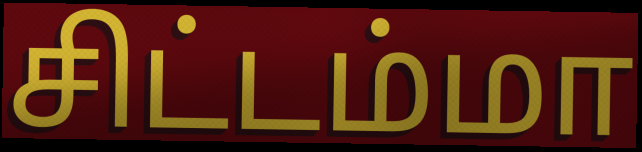
சிட்டம்மா